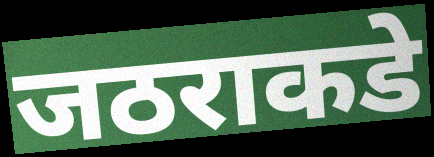
जठराकडे